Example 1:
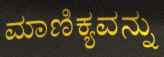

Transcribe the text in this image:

ಮಾಣಿಕ್ಯವನ್ನು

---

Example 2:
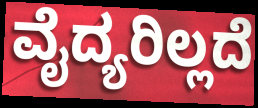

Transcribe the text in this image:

ವೈದ್ಯರಿಲ್ಲದೆ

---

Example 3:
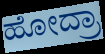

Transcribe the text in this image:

ಹೋದ್ರಾ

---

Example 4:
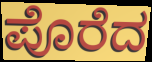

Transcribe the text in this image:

ಪೊರೆದ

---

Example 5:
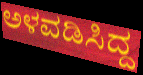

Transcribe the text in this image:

ಅಳವಡಿಸಿದ್ದ